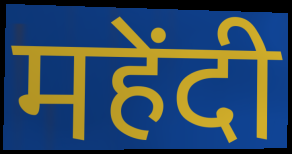
महेंदी